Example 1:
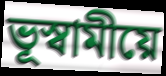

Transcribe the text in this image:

ভূস্বামীয়ে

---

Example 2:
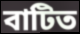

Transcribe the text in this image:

বাটিত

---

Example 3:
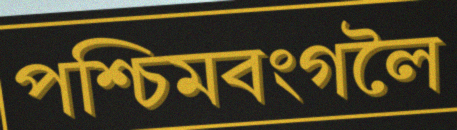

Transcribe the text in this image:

পশ্চিমবংগলৈ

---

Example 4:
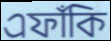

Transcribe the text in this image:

এফাঁকি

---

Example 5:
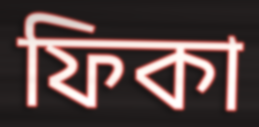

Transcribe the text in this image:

ফিকা